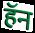
हॅन